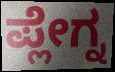
ಪ್ಲೇಗ್ನ